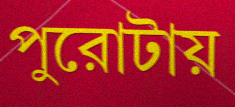
পুরোটায়